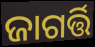
ଜାଗର୍ତ୍ତି